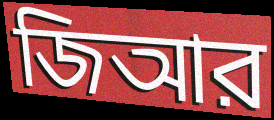
জিআর